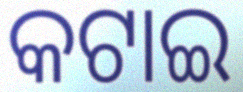
କଟାଇ